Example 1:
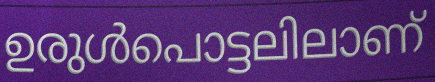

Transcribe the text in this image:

ഉരുൾപൊട്ടലിലാണ്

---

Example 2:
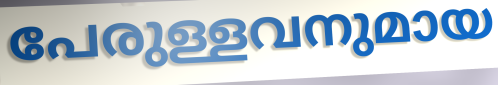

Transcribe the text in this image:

പേരുള്ളവനുമായ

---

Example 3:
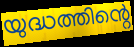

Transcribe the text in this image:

യുദ്ധത്തിന്റെ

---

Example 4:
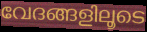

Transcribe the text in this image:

വേദങ്ങളിലൂടെ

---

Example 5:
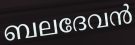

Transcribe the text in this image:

ബലദേവൻ